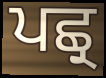
ਪਛ੍ਰ